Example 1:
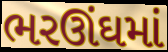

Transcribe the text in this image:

ભરઊંઘમાં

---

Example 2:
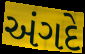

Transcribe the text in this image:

અંગદે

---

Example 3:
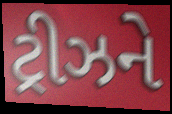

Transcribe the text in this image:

ટ્રીઝને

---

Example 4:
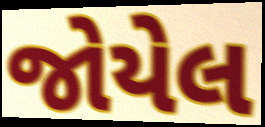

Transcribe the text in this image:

જોયેલ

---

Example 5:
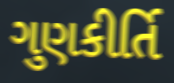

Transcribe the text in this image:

ગુણકીર્તિ